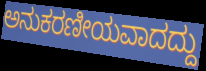
ಅನುಕರಣೀಯವಾದದ್ದು